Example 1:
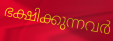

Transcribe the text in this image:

ഭക്ഷിക്കുന്നവർ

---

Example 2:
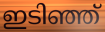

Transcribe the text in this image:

ഇടിഞ്ഞ്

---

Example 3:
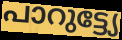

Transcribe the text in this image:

പാറുട്ട്യേ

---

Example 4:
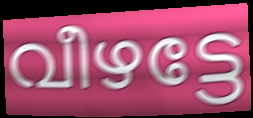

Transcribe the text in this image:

വീഴട്ടേ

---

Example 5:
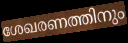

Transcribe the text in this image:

ശേഖരണത്തിനും